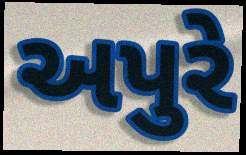
અપુરે